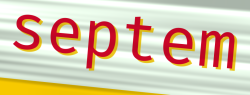
septem